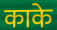
काके